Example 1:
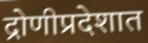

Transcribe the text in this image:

द्रोणीप्रदेशात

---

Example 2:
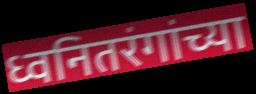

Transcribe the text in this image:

ध्वनितरंगांच्या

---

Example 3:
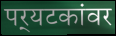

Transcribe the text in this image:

पर्यटकांवर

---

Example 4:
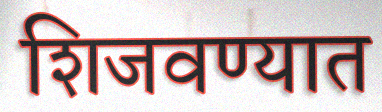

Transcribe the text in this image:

शिजवण्यात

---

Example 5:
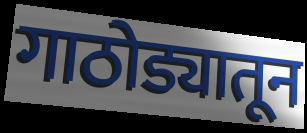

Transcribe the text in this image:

गाठोड्यातून